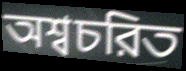
অশ্বচরিত